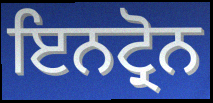
ਇਨਟ੍ਰੋਨ